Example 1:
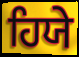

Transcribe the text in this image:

ਹਿਯੇ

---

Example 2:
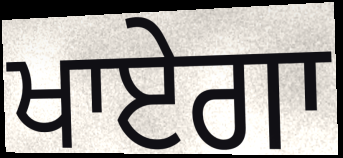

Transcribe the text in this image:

ਖਾਏਗਾ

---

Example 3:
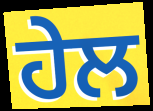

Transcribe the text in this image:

ਹੇਲ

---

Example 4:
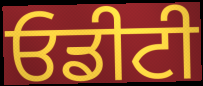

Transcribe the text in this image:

ਓਡੀਟੀ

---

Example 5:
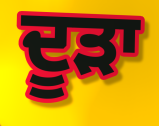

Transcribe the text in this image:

ਦੂੜਾ